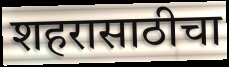
शहरासाठीचा